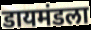
डायमंडला